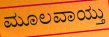
ಮೂಲವಾಯ್ತು